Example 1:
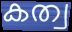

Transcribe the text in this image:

കത്വ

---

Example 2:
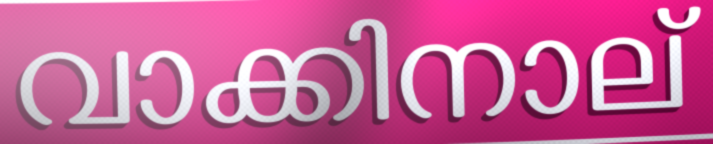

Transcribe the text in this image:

വാക്കിനാല്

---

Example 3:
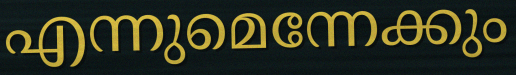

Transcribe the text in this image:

എന്നുമെന്നേക്കും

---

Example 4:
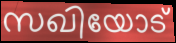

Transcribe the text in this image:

സഖിയോട്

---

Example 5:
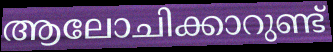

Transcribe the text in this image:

ആലോചിക്കാറുണ്ട്